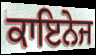
ਕਾਇਨੇਜ